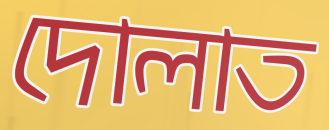
দোলাত